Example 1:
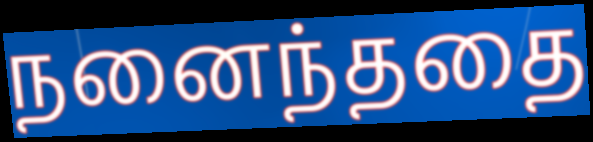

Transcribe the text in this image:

நனைந்ததை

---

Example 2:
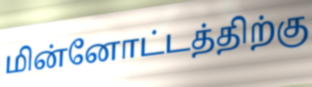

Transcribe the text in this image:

மின்னோட்டத்திற்கு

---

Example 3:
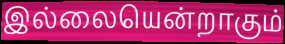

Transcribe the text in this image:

இல்லையென்றாகும்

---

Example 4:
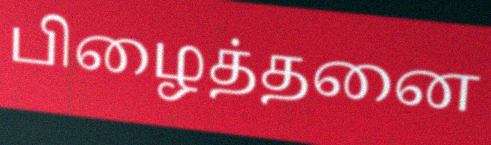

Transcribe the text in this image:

பிழைத்தனை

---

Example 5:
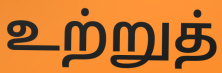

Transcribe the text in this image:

உற்றுத்